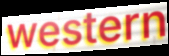
western